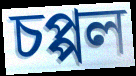
চপ্পল